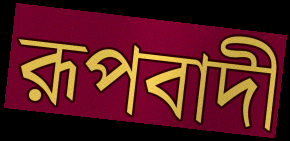
রূপবাদী